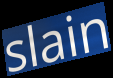
slain